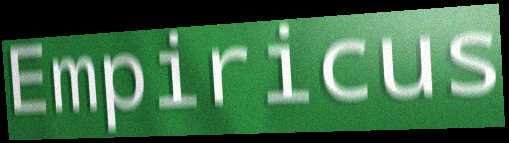
Empiricus